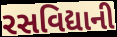
રસવિદ્યાની